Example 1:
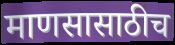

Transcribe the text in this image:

माणसासाठीच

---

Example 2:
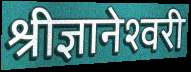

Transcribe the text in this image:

श्रीज्ञानेश्वरी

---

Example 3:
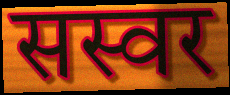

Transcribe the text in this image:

सस्वर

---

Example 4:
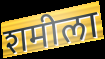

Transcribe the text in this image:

शमीला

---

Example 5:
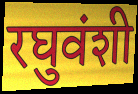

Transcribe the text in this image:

रघुवंशी